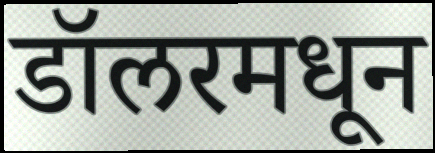
डॉलरमधून